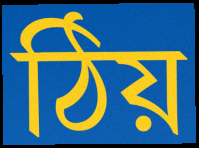
ঠিয়